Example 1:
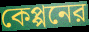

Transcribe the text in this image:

কেপ্পনের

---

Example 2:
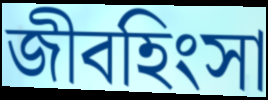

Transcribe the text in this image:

জীবহিংসা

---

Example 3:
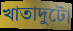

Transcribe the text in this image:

খাতাদুটো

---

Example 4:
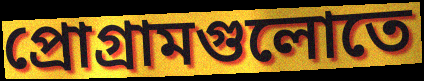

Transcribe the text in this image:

প্রোগ্রামগুলোতে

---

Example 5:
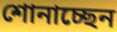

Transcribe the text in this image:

শোনাচ্ছেন